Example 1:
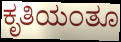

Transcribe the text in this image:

ಕೃತಿಯಂತೂ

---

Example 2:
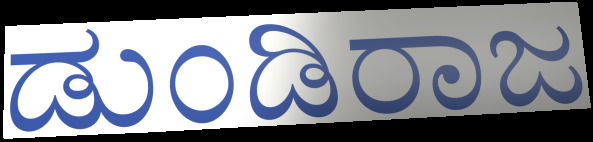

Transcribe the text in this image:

ಡುಂಡಿರಾಜ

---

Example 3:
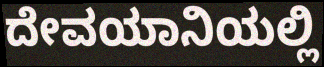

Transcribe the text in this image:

ದೇವಯಾನಿಯಲ್ಲಿ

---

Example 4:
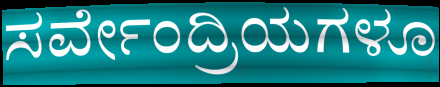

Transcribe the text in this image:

ಸರ್ವೇಂದ್ರಿಯಗಳೂ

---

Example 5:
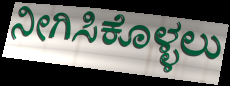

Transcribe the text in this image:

ನೀಗಿಸಿಕೊಳ್ಳಲು